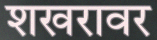
शखरावर